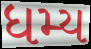
ધમ્ય